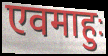
एवमाहुः